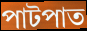
পাটপাত